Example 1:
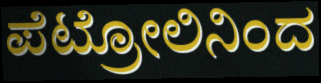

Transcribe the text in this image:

ಪೆಟ್ರೋಲಿನಿಂದ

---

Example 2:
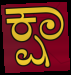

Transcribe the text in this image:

ಕ್ಷಾ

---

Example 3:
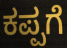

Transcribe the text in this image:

ಕಪ್ಪಗೆ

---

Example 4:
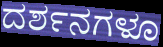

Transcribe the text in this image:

ದರ್ಶನಗಳೂ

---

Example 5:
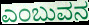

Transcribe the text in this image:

ಎಂಬುವನ